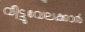
വീട്ടുവേലക്കാർ